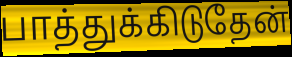
பாத்துக்கிடுதேன்